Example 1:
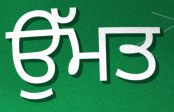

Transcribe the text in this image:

ਉੱਮਤ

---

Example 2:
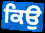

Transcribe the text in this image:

ਕਿਉ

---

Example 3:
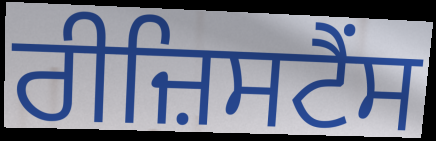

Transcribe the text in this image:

ਰੀਜ਼ਿਸਟੈਂਸ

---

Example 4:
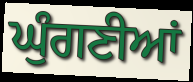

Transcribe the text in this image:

ਘੁੰਗਣੀਆਂ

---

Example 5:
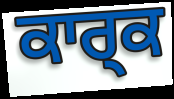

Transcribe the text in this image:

ਕਾਰ੍ਕ